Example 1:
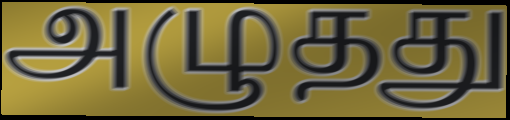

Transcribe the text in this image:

அழுதது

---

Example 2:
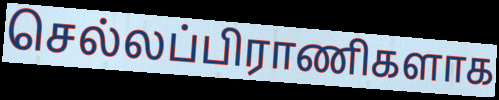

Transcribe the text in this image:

செல்லப்பிராணிகளாக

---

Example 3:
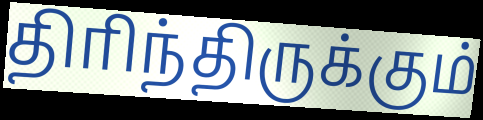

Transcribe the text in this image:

திரிந்திருக்கும்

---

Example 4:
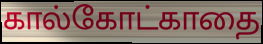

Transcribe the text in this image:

கால்கோட்காதை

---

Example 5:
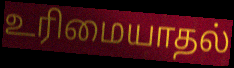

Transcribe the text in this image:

உரிமையாதல்